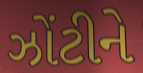
ઝોંટીને